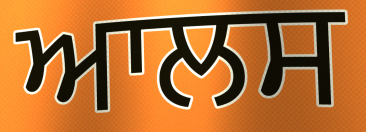
ਆਲਸ